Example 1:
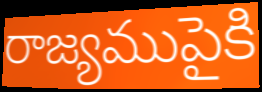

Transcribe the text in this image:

రాజ్యముపైకి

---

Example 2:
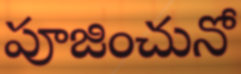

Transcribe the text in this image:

పూజించునో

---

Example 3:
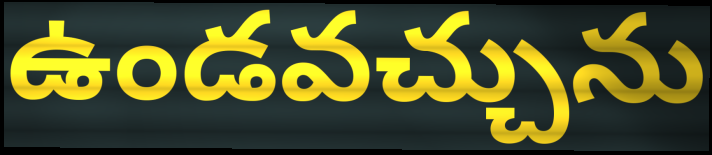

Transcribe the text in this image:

ఉండవచ్చును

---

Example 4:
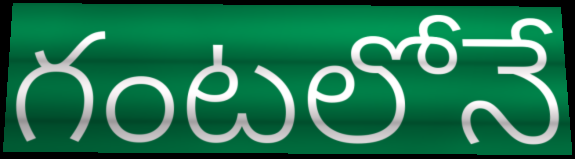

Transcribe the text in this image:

గంటలోనే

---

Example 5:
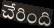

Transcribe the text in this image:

చేరింది